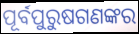
ପୂର୍ବପୁରୁଷଗଣଙ୍କର